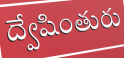
ద్వేషింతురు